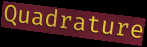
Quadrature